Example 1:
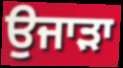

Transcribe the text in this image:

ਉਜਾੜਾ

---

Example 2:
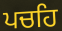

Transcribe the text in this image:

ਪਚਹਿ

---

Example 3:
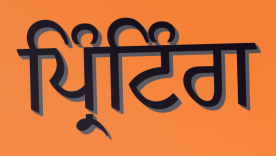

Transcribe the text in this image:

ਪ੍ਰਿੰਟਿੰਗ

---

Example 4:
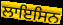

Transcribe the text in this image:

ਲਾਇਸਿਨ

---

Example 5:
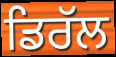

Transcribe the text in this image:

ਡਿਰੱਲ